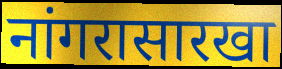
नांगरासारखा